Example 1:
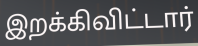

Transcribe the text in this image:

இறக்கிவிட்டார்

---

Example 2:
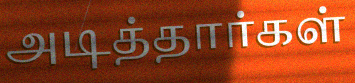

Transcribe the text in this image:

அடித்தார்கள்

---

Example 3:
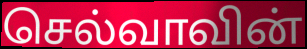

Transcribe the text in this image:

செல்வாவின்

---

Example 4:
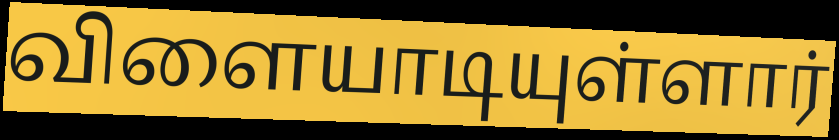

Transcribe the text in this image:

விளையாடியுள்ளார்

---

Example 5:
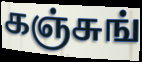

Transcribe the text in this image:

கஞ்சுங்